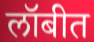
लॉबीत